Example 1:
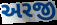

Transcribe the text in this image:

અરજી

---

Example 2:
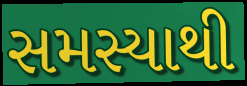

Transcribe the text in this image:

સમસ્યાથી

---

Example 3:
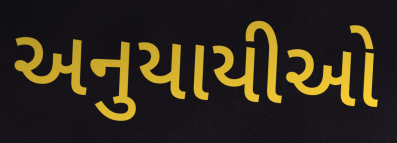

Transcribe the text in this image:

અનુયાયીઓ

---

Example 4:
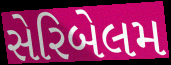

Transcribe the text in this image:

સેરિબેલમ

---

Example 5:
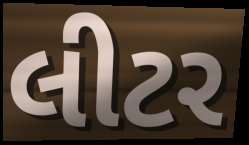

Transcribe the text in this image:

લીટર